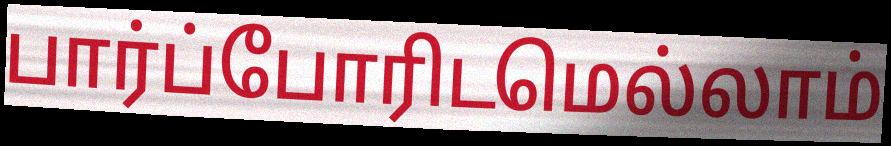
பார்ப்போரிடமெல்லாம்